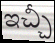
ఇచ్చీ